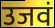
उजवं